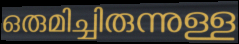
ഒരുമിച്ചിരുന്നുള്ള